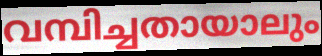
വമ്പിച്ചതായാലും